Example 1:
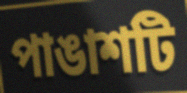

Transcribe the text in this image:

পাঙাশটি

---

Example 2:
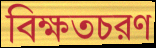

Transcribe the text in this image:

বিক্ষতচরণ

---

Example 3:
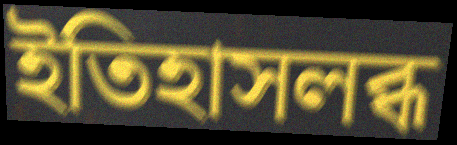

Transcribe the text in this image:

ইতিহাসলব্ধ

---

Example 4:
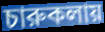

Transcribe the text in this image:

চারুকলায়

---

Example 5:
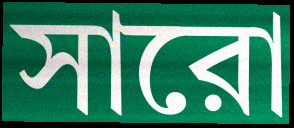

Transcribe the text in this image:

সারো